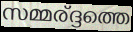
സമ്മര്ദ്ദത്തെ